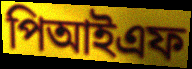
পিআইএফ